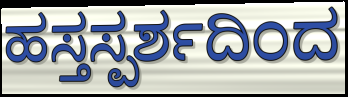
ಹಸ್ತಸ್ಪರ್ಶದಿಂದ